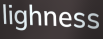
lighness